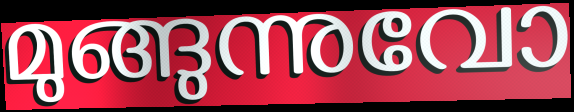
മുങ്ങുന്നുവോ